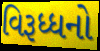
વિરૂધ્ધનો